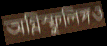
অগ্নিস্ফুলিঙ্গও